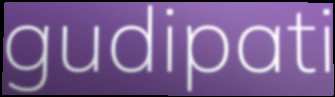
gudipati